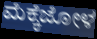
ಮೆಕ್ಕೆಜೋಳ